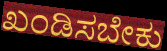
ಖಂಡಿಸಬೇಕು